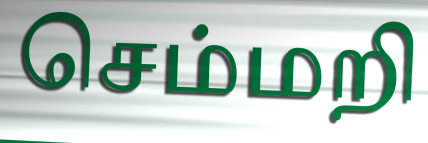
செம்மறி